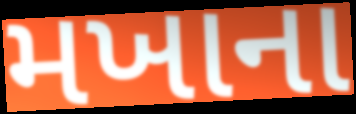
મખાના